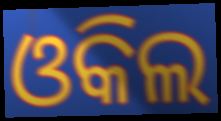
ଓକିଲ